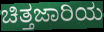
ಚಿತ್ತಜಾರಿಯ